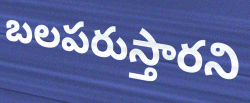
బలపరుస్తారని